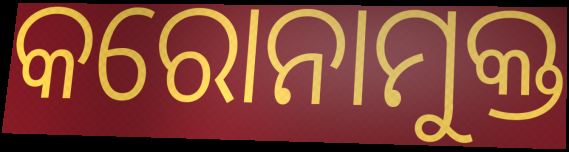
କରୋନାମୁକ୍ତ